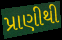
પ્રાણીથી